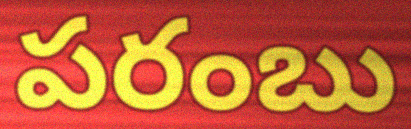
పరంబు